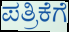
ಪತ್ರಿಕೆಗೆ